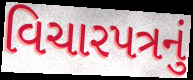
વિચારપત્રનું